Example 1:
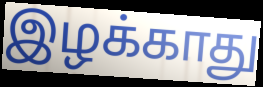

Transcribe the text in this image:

இழக்காது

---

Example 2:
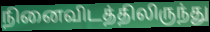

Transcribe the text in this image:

நினைவிடத்திலிருந்து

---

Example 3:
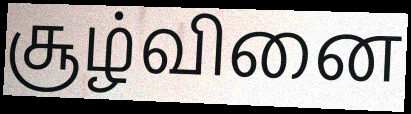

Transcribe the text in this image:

சூழ்வினை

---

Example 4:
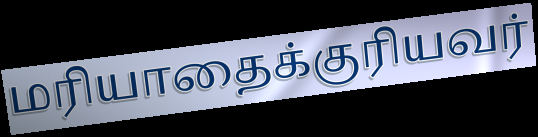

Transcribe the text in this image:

மரியாதைக்குரியவர்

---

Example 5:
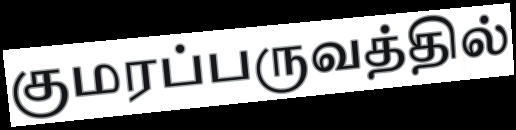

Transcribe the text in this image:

குமரப்பருவத்தில்